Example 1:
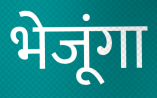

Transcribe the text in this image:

भेजूंगा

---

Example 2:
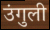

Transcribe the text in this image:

उंगुली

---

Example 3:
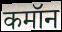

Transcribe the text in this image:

कमॉन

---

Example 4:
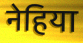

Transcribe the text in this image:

नेहिया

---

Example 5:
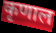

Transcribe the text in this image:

कृणाल